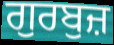
ਗੁਰਬੁਜ਼